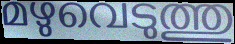
മഴുവെടുത്തു